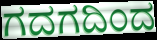
ಗದಗದಿಂದ